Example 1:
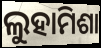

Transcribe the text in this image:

ଲୁହାମିଶା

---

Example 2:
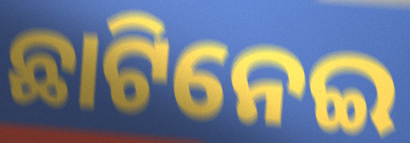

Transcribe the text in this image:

ଛାଟିନେଇ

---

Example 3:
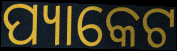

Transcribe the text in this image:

ପ୍ଯାକେଟ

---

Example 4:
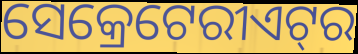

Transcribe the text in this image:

ସେକ୍ରେଟେରୀଏଟ୍‍ର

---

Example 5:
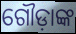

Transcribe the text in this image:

ଗୌଡ଼ାଙ୍କ